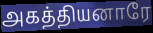
அகத்தியனாரே